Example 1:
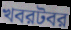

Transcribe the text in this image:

খবরটবর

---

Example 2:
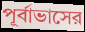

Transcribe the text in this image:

পূর্বাভাসের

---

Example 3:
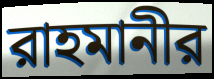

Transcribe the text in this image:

রাহমানীর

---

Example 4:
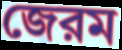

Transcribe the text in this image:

জেরম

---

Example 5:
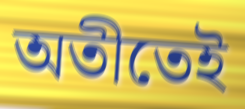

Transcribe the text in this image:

অতীতেই